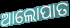
ଆଲୋପାତ